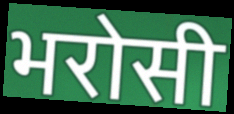
भरोसी